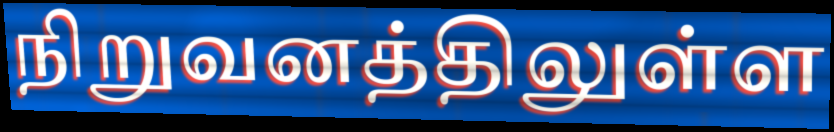
நிறுவனத்திலுள்ள